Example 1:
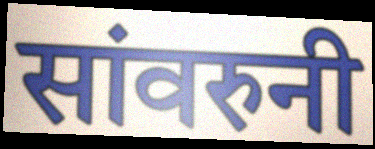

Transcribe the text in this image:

सांवरुनी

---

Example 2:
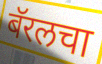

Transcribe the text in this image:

बॅरलचा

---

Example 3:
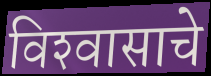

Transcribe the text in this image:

विश्वासाचे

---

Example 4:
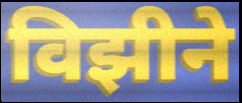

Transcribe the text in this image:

विझीने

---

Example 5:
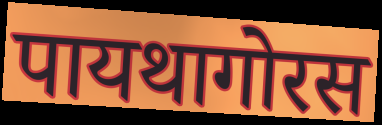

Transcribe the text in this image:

पायथागोरस